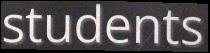
students